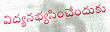
విద్యనభ్యసించేందుకు